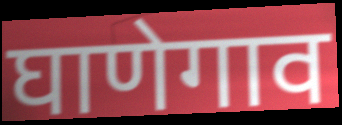
घाणेगाव